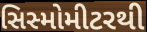
સિસ્મોમીટરથી